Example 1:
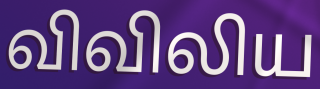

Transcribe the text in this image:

விவிலிய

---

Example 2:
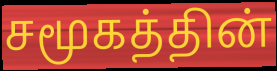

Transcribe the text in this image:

சமூகத்தின்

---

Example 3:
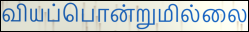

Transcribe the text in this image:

வியப்பொன்றுமில்லை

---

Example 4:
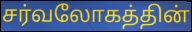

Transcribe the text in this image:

சர்வலோகத்தின்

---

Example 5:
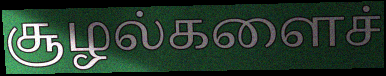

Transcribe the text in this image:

சூழல்களைச்